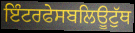
ਇੰਟਰਫੇਸਬਲਿਊਟੁੱਥ